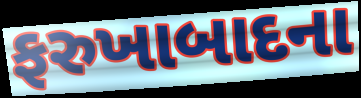
ફરુખાબાદના